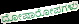
ದೋಷಾರೋಪಗಳು